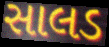
સાલડ